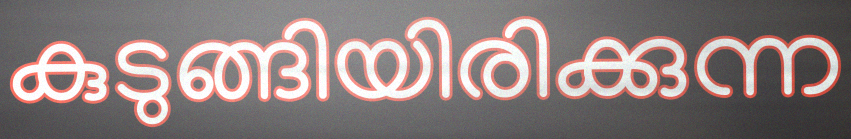
കുടുങ്ങിയിരിക്കുന്ന